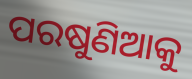
ପରଷୁଣିଆକୁ